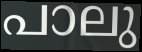
പാലു